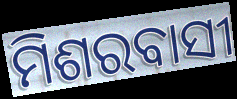
ମିଶରବାସୀ